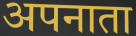
अपनाता